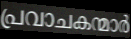
പ്രവാചകന്മാർ